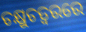
ଚକ୍ଷୁଚତ୍ୱରରେ